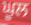
ਘੂਲ